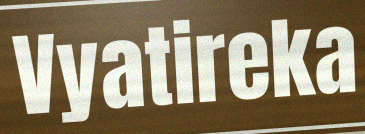
Vyatireka